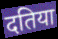
दतिया